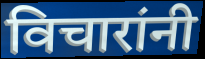
विचारांनी